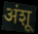
अंशू